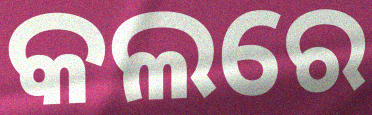
କଲରେ